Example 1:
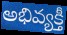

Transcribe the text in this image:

అభివ్యక్తీ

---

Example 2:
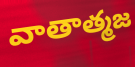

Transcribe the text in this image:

వాతాత్మజ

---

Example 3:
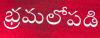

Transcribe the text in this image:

భ్రమలోపడి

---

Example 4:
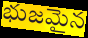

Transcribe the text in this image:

భుజమైన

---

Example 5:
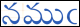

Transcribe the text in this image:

నముఁ